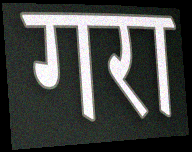
गरा